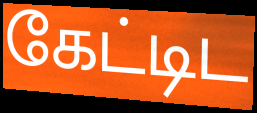
கேட்டிட